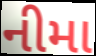
નીમા